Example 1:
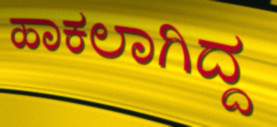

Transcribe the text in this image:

ಹಾಕಲಾಗಿದ್ದ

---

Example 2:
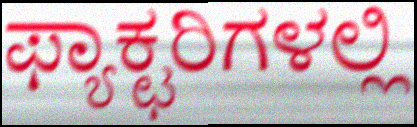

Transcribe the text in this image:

ಫ್ಯಾಕ್ಟರಿಗಳಲ್ಲಿ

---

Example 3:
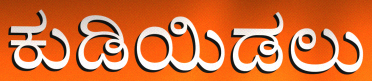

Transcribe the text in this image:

ಕುಡಿಯಿಡಲು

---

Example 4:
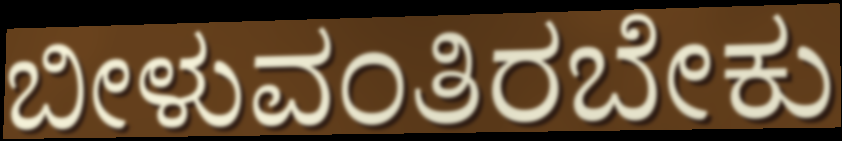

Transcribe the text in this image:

ಬೀಳುವಂತಿರಬೇಕು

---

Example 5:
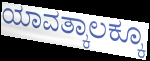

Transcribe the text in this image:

ಯಾವತ್ಕಾಲಕ್ಕೂ